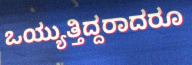
ಒಯ್ಯುತ್ತಿದ್ದರಾದರೂ